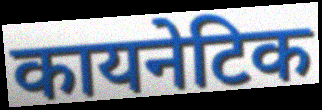
कायनेटिक